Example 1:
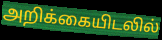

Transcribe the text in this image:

அறிக்கையிடலில்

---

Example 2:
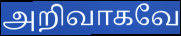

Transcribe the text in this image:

அறிவாகவே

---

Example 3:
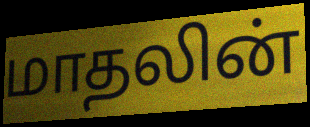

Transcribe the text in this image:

மாதலின்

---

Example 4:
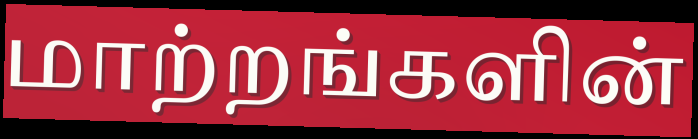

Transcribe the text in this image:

மாற்றங்களின்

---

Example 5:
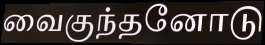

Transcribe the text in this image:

வைகுந்தனோடு